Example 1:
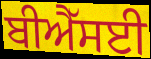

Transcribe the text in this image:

ਬੀਐੱਸਈ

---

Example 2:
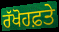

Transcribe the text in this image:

ਰੱਖੋਹਫ਼ਤੇ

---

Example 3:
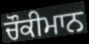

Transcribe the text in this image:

ਚੌਕੀਮਾਨ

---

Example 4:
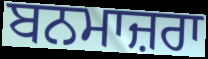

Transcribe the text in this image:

ਬਨਮਾਜ਼ਰਾ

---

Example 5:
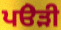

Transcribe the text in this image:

ਪੳੇੜੀ